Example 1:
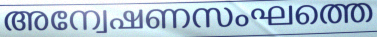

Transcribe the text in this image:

അന്വേഷണസംഘത്തെ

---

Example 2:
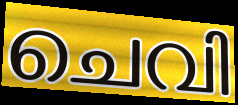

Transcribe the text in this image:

ചെവി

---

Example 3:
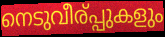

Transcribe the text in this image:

നെടുവീര്പ്പുകളും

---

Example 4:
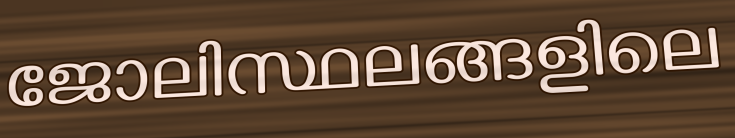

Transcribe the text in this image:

ജോലിസ്ഥലങ്ങളിലെ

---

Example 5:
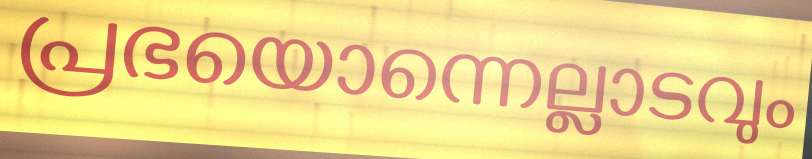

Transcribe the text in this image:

പ്രഭയൊന്നെല്ലാടവും